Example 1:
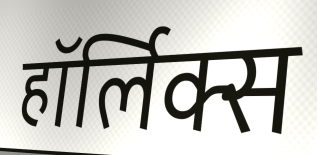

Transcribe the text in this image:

हॉर्लिक्स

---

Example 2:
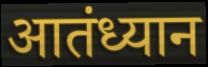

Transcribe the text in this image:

आतंध्यान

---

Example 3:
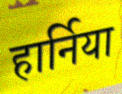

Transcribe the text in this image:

हार्निया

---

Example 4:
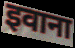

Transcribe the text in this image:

इवाना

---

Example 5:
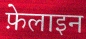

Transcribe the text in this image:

फ़ेलाइन